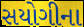
સયોગીના